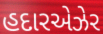
હદારએઝેર